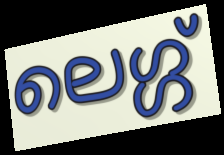
ലെഗ്ഗ്